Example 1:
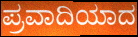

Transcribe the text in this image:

ಪ್ರವಾದಿಯಾದ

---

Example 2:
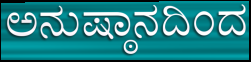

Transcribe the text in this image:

ಅನುಷ್ಠಾನದಿಂದ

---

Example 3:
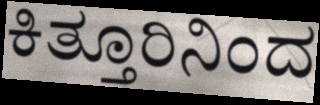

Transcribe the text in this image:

ಕಿತ್ತೂರಿನಿಂದ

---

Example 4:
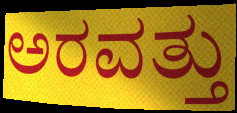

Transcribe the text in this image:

ಅರವತ್ತು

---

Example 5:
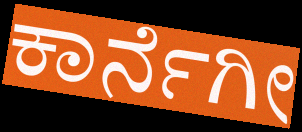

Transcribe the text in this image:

ಕಾರ್ನೆಗೀ